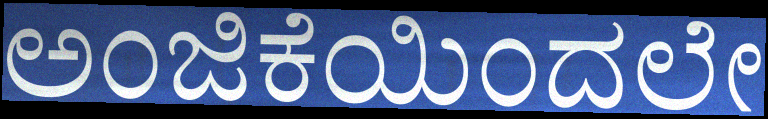
ಅಂಜಿಕೆಯಿಂದಲೇ